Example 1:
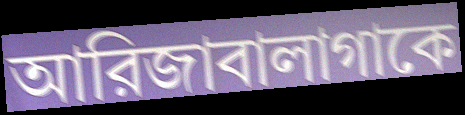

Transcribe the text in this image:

আরিজাবালাগাকে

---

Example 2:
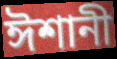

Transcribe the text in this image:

ঈশানী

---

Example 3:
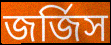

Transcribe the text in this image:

জর্জিস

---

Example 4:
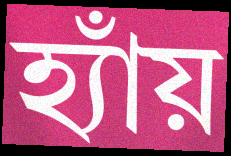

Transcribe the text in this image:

হ্যাঁয়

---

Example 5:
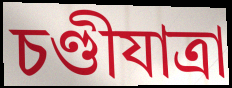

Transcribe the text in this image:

চণ্ডীযাত্রা